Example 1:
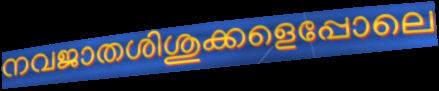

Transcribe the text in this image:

നവജാതശിശുക്കളെപ്പോലെ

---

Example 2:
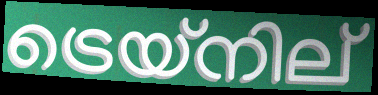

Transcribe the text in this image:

ട്രെയ്നില്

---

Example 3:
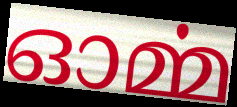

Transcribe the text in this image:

ഓൎമ്മ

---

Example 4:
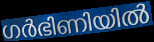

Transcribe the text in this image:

ഗർഭിണിയിൽ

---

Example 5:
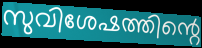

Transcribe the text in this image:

സുവിശേഷത്തിന്റെ